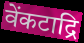
वेंकटाद्रि